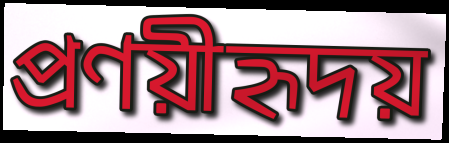
প্রণয়ীহৃদয়